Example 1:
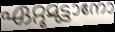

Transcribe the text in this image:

ഏറ്റുമുട്ടാനോ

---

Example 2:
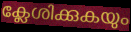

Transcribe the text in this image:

ക്ലേശിക്കുകയും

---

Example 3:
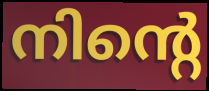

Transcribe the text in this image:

നിന്റെ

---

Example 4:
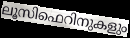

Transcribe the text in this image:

ലൂസിഫെറിനുകളും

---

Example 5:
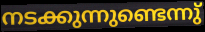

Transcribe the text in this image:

നടക്കുന്നുണ്ടെന്നു്